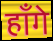
हाँगे